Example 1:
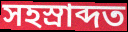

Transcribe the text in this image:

সহস্ৰাব্দত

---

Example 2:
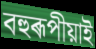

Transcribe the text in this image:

বহুৰূপীয়াই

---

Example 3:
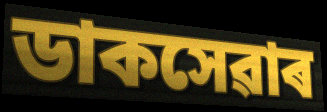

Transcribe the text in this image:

ডাকসেৱাৰ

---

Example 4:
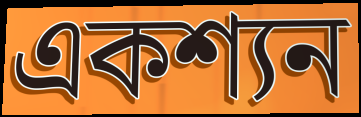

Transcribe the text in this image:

একশ্যন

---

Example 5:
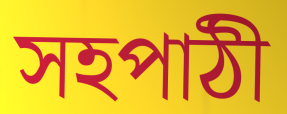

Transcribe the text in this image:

সহপাঠী